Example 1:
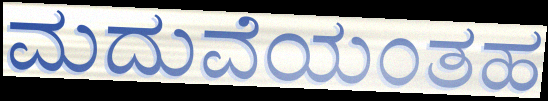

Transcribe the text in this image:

ಮದುವೆಯಂತಹ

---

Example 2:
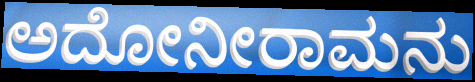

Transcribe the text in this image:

ಅದೋನೀರಾಮನು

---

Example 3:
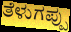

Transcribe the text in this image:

ತೆಳುಗಪ್ಪು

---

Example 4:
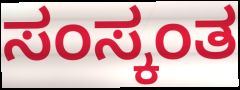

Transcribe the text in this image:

ಸಂಸ್ಕಂತ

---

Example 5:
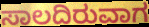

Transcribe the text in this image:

ಸಾಲದಿರುವಾಗ